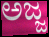
ಅಜ್ಜ